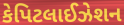
કેપિટલાઈઝેશન